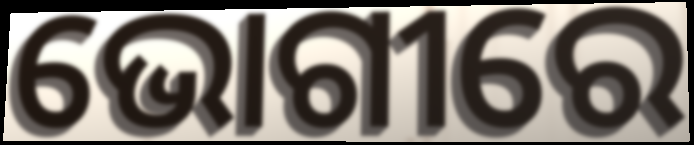
ଭୋଗୀରେ